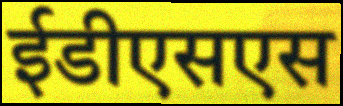
ईडीएसएस